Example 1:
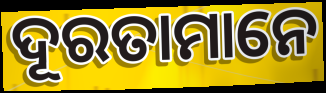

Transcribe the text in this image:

ଦୂରତାମାନେ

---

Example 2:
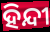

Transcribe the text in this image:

ହିନ୍ଦୀ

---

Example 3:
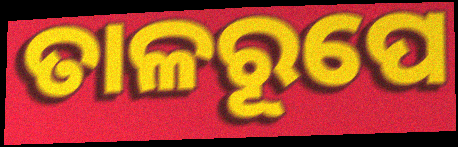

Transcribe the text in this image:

ତାଳରୂପେ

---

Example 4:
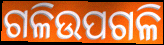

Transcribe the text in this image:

ଗଳିଉପଗଳି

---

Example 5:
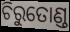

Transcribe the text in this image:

ଚିରୁତୋଣ୍ଡ